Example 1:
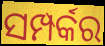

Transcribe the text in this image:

ସମ୍ପର୍କର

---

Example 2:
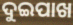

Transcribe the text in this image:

ଦୁଇପାଖ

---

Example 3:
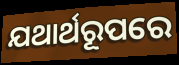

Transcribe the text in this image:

ଯଥାର୍ଥରୂପରେ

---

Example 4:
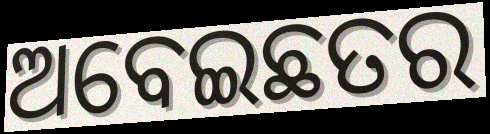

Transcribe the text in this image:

ଅବେଇଛତର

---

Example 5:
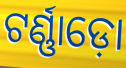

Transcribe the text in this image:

ଟର୍ଣ୍ଣାଡ଼ୋ